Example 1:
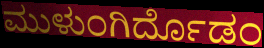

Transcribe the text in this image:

ಮುಳುಂಗಿರ್ದೊಡಂ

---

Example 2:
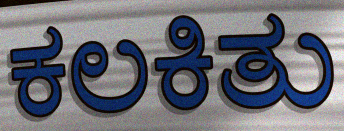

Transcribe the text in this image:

ಕಲಕಿತು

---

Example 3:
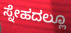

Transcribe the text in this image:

ಸ್ನೇಹದಲ್ಲೂ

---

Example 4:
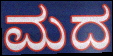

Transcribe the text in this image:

ಮದ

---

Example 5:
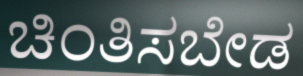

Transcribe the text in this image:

ಚಿಂತಿಸಬೇಡ